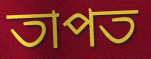
তাপত